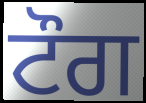
ਟੌਗ